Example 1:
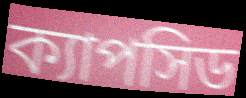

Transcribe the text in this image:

ক্যাপসিড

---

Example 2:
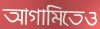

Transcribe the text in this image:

আগামিতেও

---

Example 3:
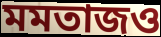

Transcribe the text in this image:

মমতাজও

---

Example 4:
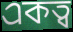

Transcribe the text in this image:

একত্ব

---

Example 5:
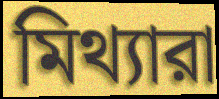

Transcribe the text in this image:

মিথ্যারা